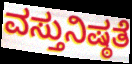
ವಸ್ತುನಿಷ್ಠತೆ